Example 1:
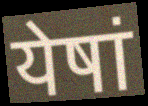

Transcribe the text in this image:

येषां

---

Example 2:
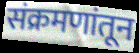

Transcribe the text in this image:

संक्रमणांतून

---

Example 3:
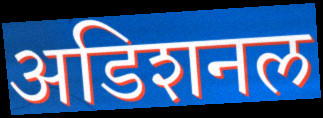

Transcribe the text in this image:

अडिशनल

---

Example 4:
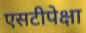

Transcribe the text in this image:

एसटीपेक्षा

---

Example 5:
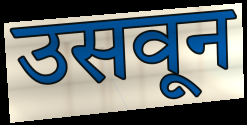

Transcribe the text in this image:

उसवून